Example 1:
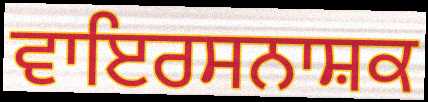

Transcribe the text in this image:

ਵਾਇਰਸਨਾਸ਼ਕ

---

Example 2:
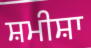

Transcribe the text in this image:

ਸ਼ਮੀਸ਼ਾ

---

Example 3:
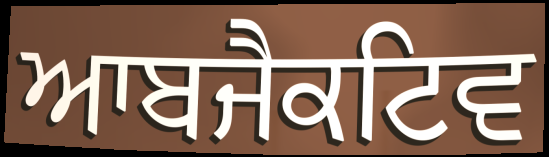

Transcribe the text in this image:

ਆਬਜੈਕਟਿਵ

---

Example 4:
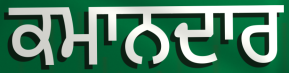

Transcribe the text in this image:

ਕਮਾਨਦਾਰ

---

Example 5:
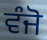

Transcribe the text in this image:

ਵੰਜੋ